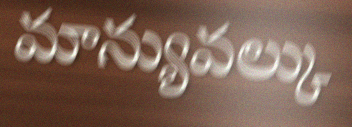
మాన్యువల్కు